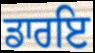
ਡਾਰਇ